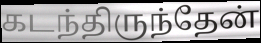
கடந்திருந்தேன்